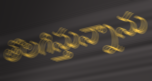
తొలగిస్తున్నాను